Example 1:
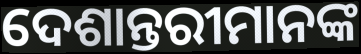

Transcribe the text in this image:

ଦେଶାନ୍ତରୀମାନଙ୍କ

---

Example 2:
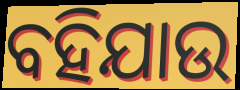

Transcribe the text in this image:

ବହିଯାଉ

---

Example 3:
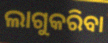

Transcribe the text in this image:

ଲାଗୁକରିବା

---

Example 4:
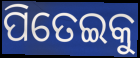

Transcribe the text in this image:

ପିତେଇକୁ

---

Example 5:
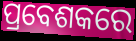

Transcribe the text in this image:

ପ୍ରବେଶକରେ